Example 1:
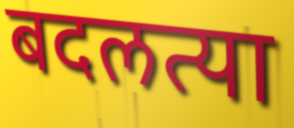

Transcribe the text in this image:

बदलत्या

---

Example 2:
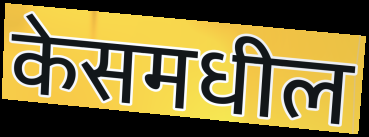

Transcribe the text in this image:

केसमधील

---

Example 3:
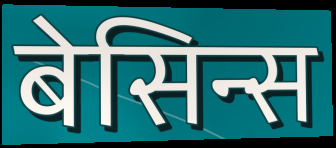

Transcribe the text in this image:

बेसिन्स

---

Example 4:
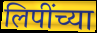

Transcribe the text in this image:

लिपींच्या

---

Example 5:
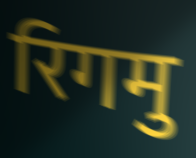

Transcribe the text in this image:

रिगमु